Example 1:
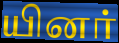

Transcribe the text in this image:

யினர்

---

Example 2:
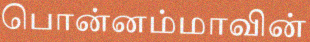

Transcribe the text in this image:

பொன்னம்மாவின்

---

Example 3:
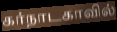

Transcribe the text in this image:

கர்நாடகாவில்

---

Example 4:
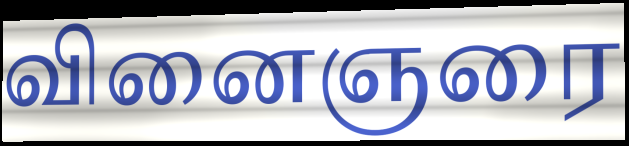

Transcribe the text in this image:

வினைஞரை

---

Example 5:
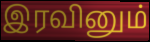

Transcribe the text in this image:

இரவினும்